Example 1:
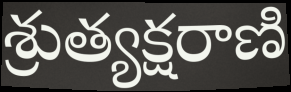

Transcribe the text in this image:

శ్రుత్యక్షరాణి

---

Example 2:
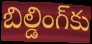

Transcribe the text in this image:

బిల్డింగ్‌కు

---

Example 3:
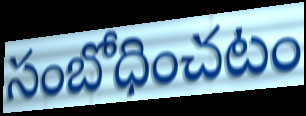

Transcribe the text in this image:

సంబోధించటం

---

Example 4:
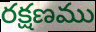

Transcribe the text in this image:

రక్షణము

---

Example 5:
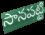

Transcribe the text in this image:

సానపట్టి